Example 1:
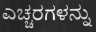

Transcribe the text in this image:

ಎಚ್ಚರಗಳನ್ನು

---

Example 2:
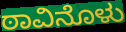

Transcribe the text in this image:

ಠಾವಿನೊಳು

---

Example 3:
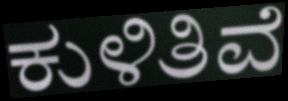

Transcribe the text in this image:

ಕುಳಿತಿವೆ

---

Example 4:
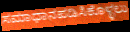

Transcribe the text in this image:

ಸಮಾಧಾನಪಡಿಸಿಕೊಳ್ಳಲು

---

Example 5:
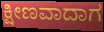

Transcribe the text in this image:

ಕ್ಷೀಣವಾದಾಗ